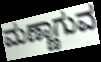
ಮಣ್ಣಾಗುವ